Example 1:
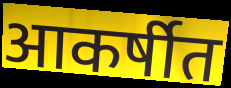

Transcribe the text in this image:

आकर्षीत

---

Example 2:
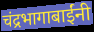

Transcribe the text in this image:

चंद्रभागाबाईंनी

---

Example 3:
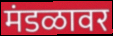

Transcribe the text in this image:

मंडळावर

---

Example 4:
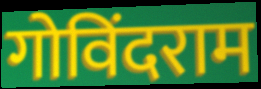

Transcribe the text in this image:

गोविंदराम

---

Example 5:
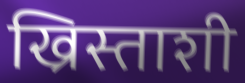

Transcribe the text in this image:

ख्रिस्ताशी